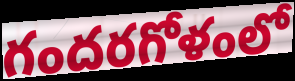
గందరగోళంలో